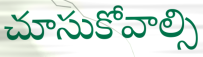
చూసుకోవాల్సి